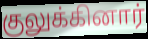
குலுக்கினார்